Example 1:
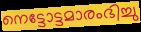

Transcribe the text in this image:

നെട്ടോട്ടമാരംഭിച്ചു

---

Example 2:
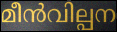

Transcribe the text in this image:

മീൻവില്പന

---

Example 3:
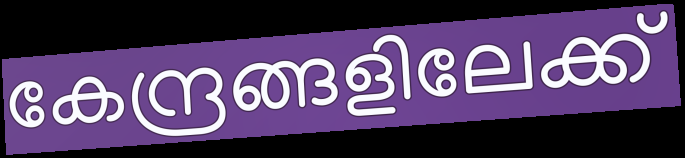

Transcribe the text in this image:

കേന്ദ്രങ്ങളിലേക്ക്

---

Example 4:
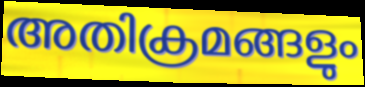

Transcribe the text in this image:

അതിക്രമങ്ങളും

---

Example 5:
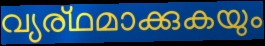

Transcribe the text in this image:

വ്യര്ഥമാക്കുകയും